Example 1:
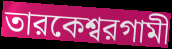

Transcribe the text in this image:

তারকেশ্বরগামী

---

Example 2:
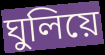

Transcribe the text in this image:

ঘুলিয়ে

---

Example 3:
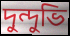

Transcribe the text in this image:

দুন্দুভি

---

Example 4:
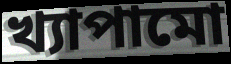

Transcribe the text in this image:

খ্যাপামো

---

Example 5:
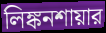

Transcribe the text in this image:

লিঙ্কনশায়ার